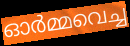
ഓർമ്മവെച്ച